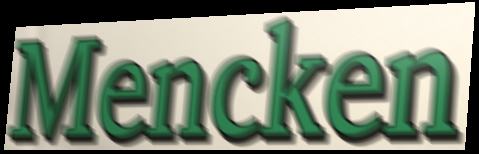
Mencken